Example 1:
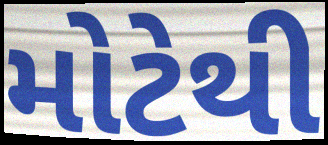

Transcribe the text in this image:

મોટેથી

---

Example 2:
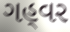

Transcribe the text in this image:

ગહ્‌વર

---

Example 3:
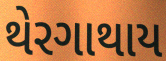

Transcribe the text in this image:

થેરગાથાય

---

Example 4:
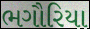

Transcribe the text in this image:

ભગૌરિયા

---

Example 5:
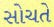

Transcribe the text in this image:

સોચતે